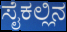
ಸೈಕಲ್ಲಿನ